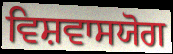
ਵਿਸ਼ਵਾਸਯੋਗ